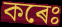
কৰেঃ